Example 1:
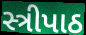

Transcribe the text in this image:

સ્ત્રીપાઠ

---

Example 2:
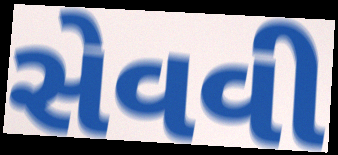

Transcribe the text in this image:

સેવવી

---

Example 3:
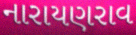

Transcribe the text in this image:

નારાયણરાવ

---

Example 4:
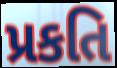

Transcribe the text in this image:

પ્રકતિ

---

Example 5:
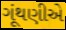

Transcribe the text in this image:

ગૂંથણીએ